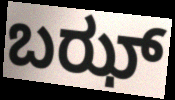
ಬಝ್